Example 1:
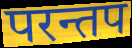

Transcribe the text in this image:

परन्तप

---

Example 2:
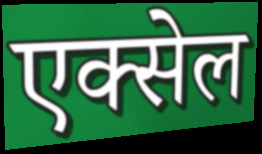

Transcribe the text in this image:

एक्सेल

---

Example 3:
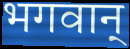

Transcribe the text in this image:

भगवान्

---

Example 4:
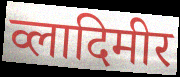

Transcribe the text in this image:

व्लादिमीर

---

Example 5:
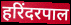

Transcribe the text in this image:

हरिंदरपाल